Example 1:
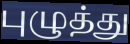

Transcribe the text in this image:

புழுத்து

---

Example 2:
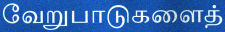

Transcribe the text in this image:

வேறுபாடுகளைத்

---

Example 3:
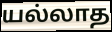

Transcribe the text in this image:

யல்லாத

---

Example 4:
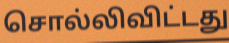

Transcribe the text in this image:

சொல்லிவிட்டது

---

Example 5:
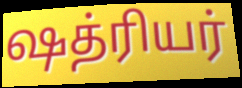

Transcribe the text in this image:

ஷத்ரியர்